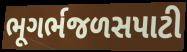
ભૂગર્ભજળસપાટી